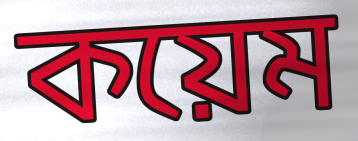
কয়েম